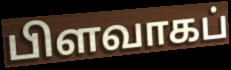
பிளவாகப்